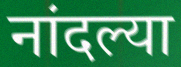
नांदल्या